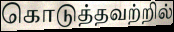
கொடுத்தவற்றில்